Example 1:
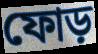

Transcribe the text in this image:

ফোড়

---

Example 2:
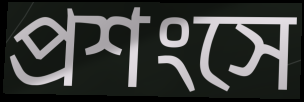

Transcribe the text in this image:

প্রশংসে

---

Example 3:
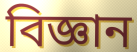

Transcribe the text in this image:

বিজ্ঞান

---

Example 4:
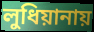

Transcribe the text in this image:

লুধিয়ানায়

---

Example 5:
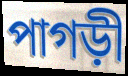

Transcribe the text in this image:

পাগড়ী